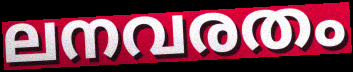
ലനവരതം